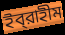
ইব্‌রাহীম